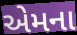
એમના